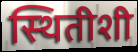
स्थितीशी